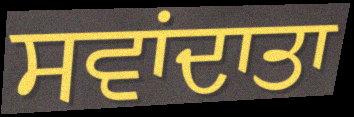
ਸਵਾਂਦਾਤਾ